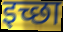
इच्छा